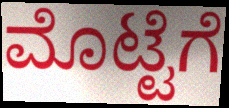
ಮೊಟ್ಟೆಗೆ